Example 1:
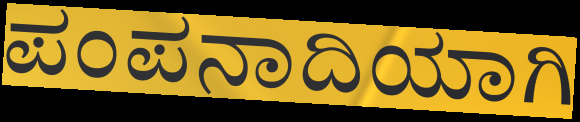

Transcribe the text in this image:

ಪಂಪನಾದಿಯಾಗಿ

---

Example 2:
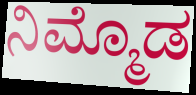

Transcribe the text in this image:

ನಿಮ್ಮೊಡ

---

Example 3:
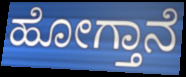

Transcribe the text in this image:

ಹೋಗ್ತಾನೆ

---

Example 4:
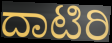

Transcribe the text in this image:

ದಾಟಿರಿ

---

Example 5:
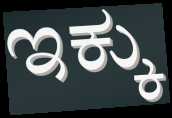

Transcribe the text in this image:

ಇಕ್ಕು